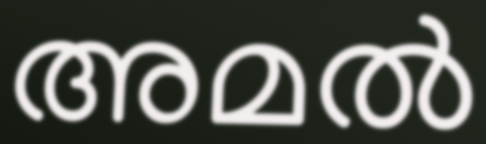
അമൽ